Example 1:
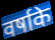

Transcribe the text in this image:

वर्षाके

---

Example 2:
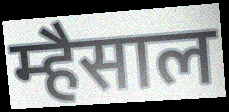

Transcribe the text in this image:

म्हैसाल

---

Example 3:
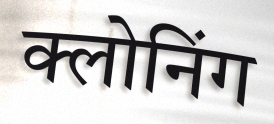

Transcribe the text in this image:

क्‍लोनिंग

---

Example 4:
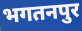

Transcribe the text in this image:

भगतनपुर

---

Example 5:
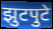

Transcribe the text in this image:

झुटपुटे